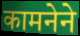
कामनेने